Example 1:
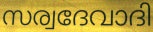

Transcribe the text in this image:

സര്വദേവാദി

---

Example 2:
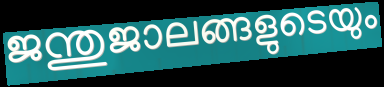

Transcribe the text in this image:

ജന്തുജാലങ്ങളുടെയും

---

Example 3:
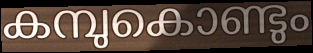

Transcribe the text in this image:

കമ്പുകൊണ്ടും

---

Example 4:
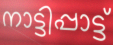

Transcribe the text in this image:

നാട്ടിപ്പാട്ട്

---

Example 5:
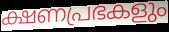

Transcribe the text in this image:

ക്ഷണപ്രഭകളും